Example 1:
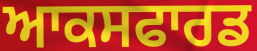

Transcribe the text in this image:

ਆਕਸਫਾਰਡ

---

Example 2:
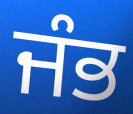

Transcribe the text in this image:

ਜੰਭ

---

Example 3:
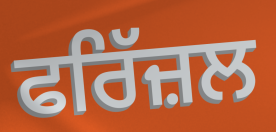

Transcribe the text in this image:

ਫਰਿੱਜ਼ਲ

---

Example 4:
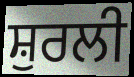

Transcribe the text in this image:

ਸ਼ੁਰਲੀ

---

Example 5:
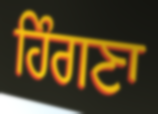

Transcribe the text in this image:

ਹਿੰਗਣਾ